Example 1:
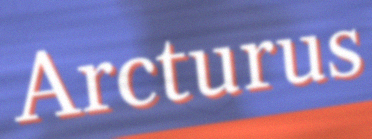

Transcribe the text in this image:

Arcturus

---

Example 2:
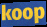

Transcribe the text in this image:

koop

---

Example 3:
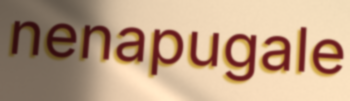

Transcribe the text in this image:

nenapugale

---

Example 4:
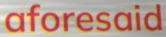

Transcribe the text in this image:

aforesaid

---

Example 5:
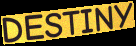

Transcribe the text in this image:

DESTINY